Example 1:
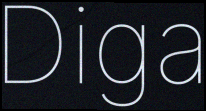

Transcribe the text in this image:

Diga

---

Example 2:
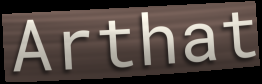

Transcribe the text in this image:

Arthat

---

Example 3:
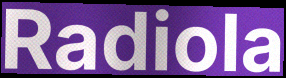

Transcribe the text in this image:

Radiola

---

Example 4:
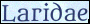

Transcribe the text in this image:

Laridae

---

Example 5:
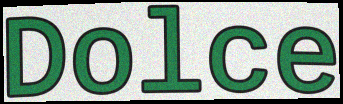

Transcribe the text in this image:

Dolce